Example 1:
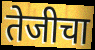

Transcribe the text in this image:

तेजीचा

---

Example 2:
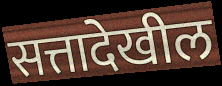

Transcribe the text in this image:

सत्तादेखील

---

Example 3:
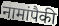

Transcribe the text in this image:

नामांपैकी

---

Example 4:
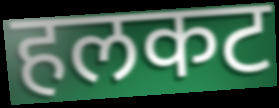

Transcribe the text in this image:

हलकट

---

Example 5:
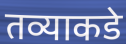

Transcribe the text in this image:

तव्याकडे